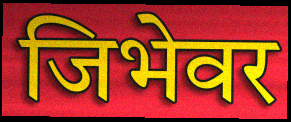
जिभेवर